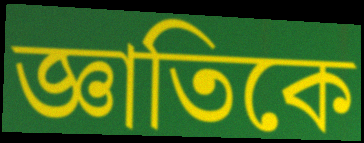
জ্ঞাতিকে